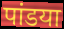
पांडया